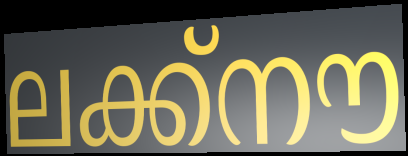
ലക്ക്നൗ